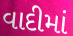
વાદીમાં